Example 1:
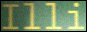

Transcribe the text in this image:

Illi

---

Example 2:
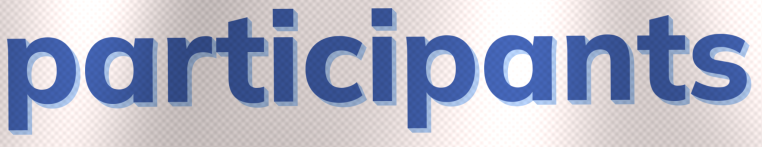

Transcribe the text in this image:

participants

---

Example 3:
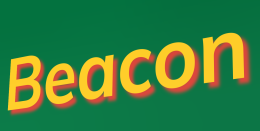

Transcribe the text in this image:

Beacon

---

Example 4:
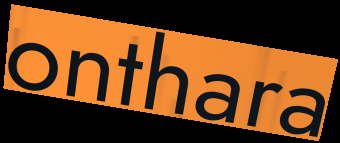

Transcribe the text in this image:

onthara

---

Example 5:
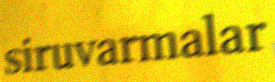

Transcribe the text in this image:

siruvarmalar